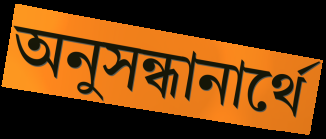
অনুসন্ধানার্থে